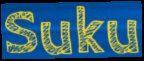
Suku